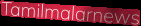
Tamilmalarnews